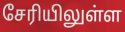
சேரியிலுள்ள